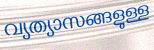
വ്യത്യാസങ്ങളുള്ള